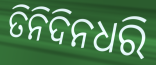
ତିନିଦିନଧରି